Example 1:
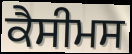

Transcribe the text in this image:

ਕੈਸੀਮਸ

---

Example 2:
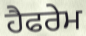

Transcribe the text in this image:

ਹੈਫਰੇਮ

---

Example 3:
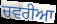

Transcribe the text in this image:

ਚਵਰੀਆ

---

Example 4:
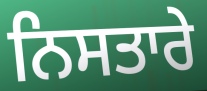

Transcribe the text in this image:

ਨਿਸਤਾਰੇ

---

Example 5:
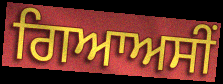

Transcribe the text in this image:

ਗਿਆਅਸੀਂ